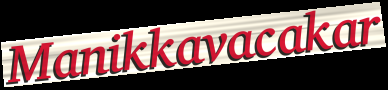
Manikkavacakar